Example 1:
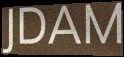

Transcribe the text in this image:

JDAM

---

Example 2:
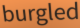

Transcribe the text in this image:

burgled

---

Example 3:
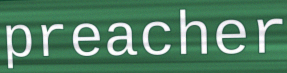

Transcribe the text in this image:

preacher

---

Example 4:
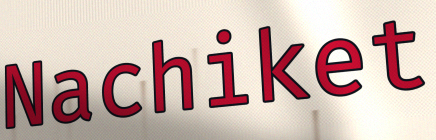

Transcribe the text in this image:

Nachiket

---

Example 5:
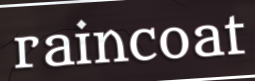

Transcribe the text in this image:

raincoat